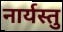
नार्यस्तु